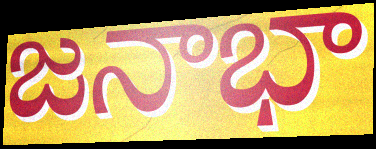
జనాభా